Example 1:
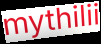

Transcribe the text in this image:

mythilii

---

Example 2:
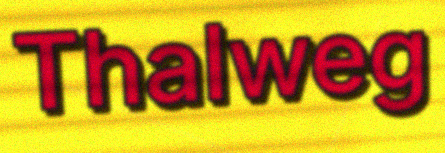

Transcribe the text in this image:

Thalweg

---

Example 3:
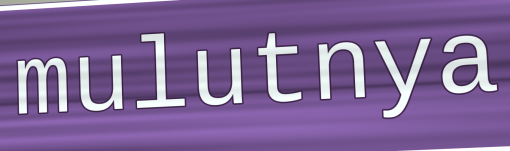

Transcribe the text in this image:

mulutnya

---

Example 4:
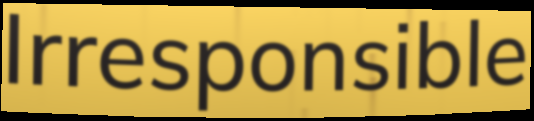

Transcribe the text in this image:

Irresponsible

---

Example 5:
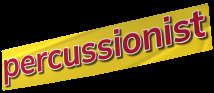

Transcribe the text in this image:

percussionist